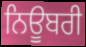
ਨਿਊਬਰੀ